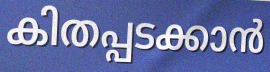
കിതപ്പടക്കാൻ